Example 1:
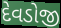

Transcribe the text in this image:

દેવડોજી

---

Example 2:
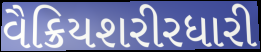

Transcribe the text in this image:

વૈક્રિયશરીરધારી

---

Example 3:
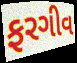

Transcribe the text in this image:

ફરગીવ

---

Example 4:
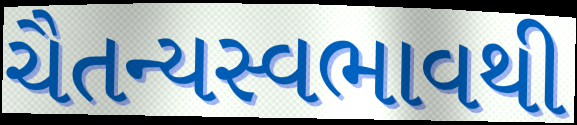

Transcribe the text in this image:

ચૈતન્યસ્વભાવથી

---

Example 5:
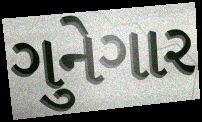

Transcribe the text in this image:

ગુનેગાર